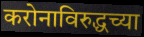
करोनाविरुद्धच्या